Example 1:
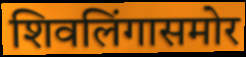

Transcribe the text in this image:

शिवलिंगासमोर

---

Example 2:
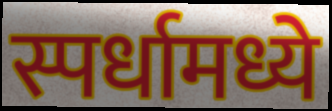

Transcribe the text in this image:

स्पर्धामध्ये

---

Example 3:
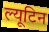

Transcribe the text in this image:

ल्यूटिन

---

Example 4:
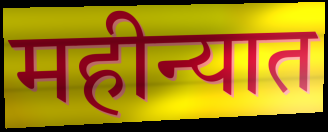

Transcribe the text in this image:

महीन्यात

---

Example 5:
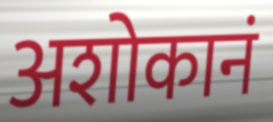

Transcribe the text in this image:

अशोकानं